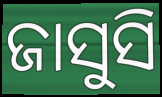
ଜାସୁସି